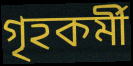
গৃহকর্মী